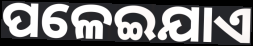
ପଳେଇଯାଏ